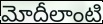
మోదీలాంటి